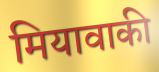
मियावाकी